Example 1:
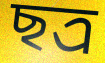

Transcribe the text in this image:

ছত্ৰ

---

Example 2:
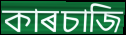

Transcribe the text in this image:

কাৰচাজি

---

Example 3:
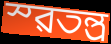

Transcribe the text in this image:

স্ৱতন্ত্ৰ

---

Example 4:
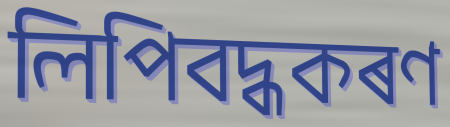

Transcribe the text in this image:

লিপিবদ্ধকৰণ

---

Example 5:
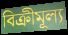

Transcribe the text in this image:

বিক্ৰীমূল্য